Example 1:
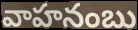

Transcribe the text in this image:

వాహనంబు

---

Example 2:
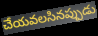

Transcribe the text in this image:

చేయవలసినప్పుడు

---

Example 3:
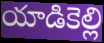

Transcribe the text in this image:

యాడికెల్లి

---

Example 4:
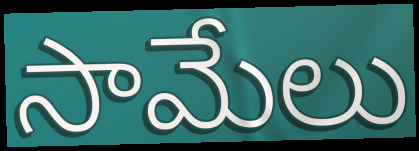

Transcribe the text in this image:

సామేలు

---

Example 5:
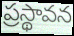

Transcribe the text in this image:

ప్రస్థావన